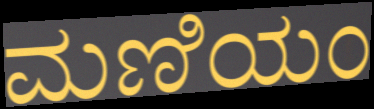
ಮಣಿಯಂ